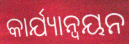
କାର୍ଯ୍ୟାନ୍ୱୟନ